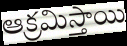
ఆక్రమిస్తాయి